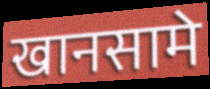
खानसामे